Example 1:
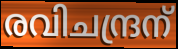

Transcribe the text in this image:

രവിചന്ദ്രന്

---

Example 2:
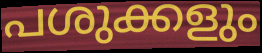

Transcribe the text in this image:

പശുക്കളും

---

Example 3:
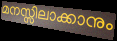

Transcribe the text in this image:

മനസ്സിലാക്കാനും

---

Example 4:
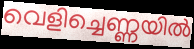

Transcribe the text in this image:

വെളിച്ചെണ്ണയിൽ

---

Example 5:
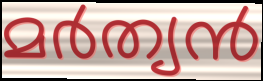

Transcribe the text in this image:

മർത്യൻ